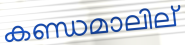
കണ്ഡമാലില്